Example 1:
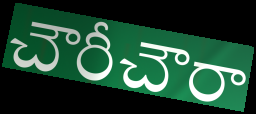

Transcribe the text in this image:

చౌరీచౌరా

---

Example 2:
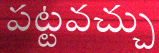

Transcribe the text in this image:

పట్టవచ్చు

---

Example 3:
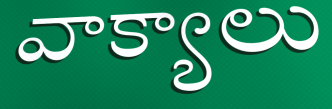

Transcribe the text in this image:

వాక్యాలు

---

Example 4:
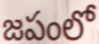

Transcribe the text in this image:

జపంలో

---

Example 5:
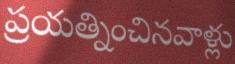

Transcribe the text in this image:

ప్రయత్నించినవాళ్లు